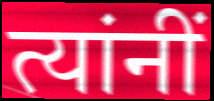
त्यांनीं